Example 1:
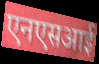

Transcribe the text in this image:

एनएसआई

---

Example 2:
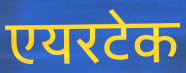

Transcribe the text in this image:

एयरटेक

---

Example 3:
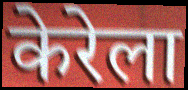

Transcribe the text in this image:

केरेला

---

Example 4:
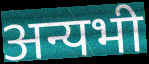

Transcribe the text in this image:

अन्यभी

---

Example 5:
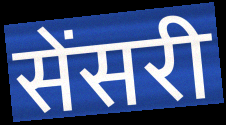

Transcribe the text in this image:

सेंसरी